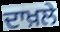
ਦਾਖ਼ਲੇ